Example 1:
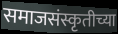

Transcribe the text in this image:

समाजसंस्कृतीच्या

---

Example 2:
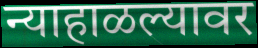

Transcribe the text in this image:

न्याहाळल्यावर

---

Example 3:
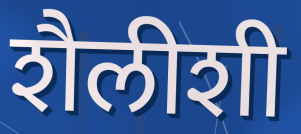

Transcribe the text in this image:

शैलीशी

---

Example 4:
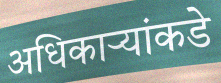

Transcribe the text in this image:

अधिकाऱ्यांकडे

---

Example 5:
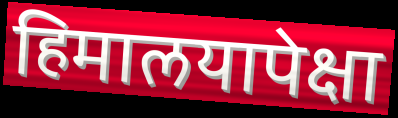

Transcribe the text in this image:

हिमालयापेक्षा